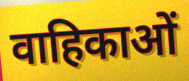
वाहिकाओं